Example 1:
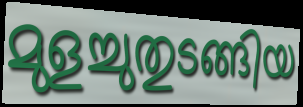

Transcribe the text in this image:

മുളച്ചുതുടങ്ങിയ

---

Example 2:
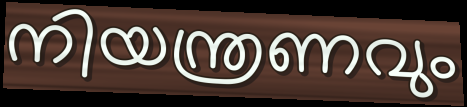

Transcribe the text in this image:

നിയന്ത്രണവും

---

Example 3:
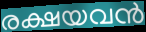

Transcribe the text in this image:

രക്ഷയവൻ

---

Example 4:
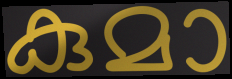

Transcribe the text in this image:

കുമാ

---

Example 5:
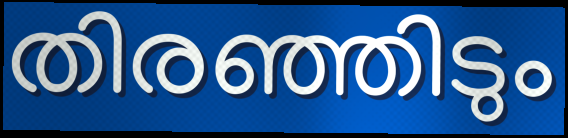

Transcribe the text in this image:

തിരഞ്ഞിടും